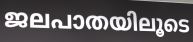
ജലപാതയിലൂടെ